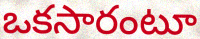
ఒకసారంటూ